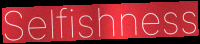
Selfishness